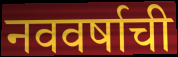
नववर्षाची